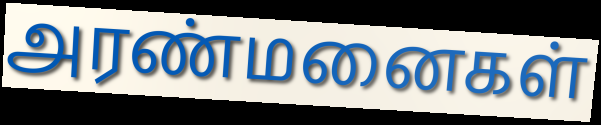
அரண்மனைகள்